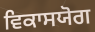
ਵਿਕਾਸਯੋਗ